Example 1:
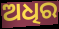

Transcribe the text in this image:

ଅଧିର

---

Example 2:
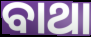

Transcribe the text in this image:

ବାଥା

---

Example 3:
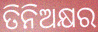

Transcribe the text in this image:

ତିନିଅକ୍ଷର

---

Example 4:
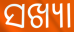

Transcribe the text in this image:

ସଖ୍ୟା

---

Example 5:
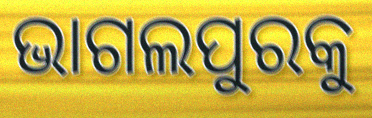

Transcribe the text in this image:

ଭାଗଲପୁରକୁ